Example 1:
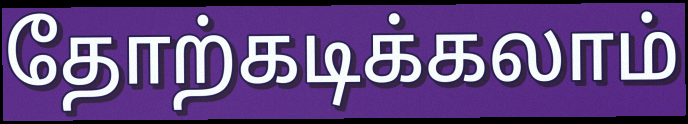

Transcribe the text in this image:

தோற்கடிக்கலாம்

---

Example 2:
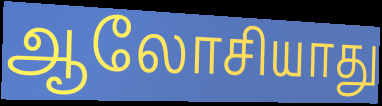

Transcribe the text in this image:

ஆலோசியாது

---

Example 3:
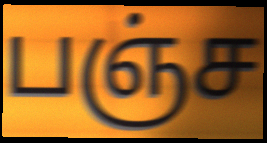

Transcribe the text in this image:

பஞ்ச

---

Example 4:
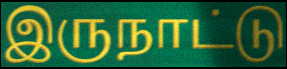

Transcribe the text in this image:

இருநாட்டு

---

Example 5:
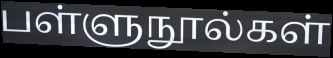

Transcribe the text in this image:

பள்ளுநூல்கள்